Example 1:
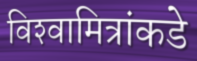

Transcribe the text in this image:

विश्वामित्रांकडे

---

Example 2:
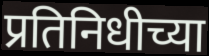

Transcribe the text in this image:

प्रतिनिधीच्या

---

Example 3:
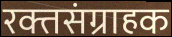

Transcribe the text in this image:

रक्तसंग्राहक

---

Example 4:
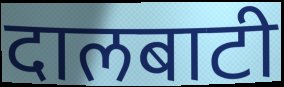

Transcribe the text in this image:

दालबाटी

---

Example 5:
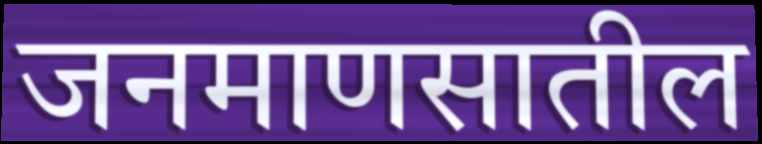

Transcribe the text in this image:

जनमाणसातील